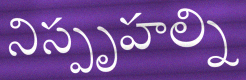
నిస్పృహల్ని